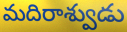
మదిరాశ్వుడు